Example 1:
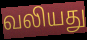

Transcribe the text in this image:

வலியது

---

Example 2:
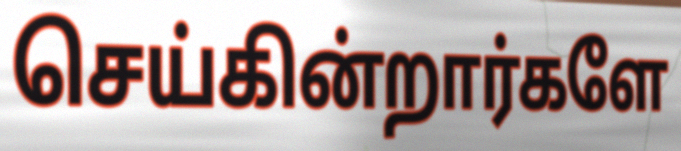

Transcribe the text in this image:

செய்கின்றார்களே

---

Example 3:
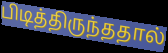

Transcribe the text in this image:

பிடித்திருந்ததால்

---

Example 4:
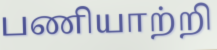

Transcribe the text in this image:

பணியாற்றி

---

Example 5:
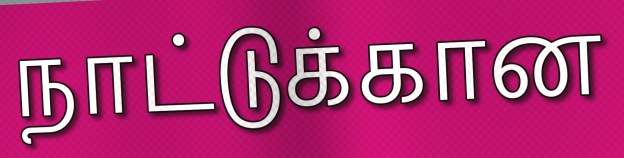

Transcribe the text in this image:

நாட்டுக்கான